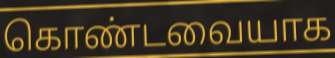
கொண்டவையாக